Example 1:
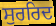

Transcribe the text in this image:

ਸੁਰਰਿਦ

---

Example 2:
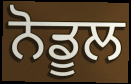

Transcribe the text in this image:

ਨੋਡੂਲ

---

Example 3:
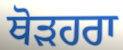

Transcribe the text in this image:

ਥੋੜਹਰਾ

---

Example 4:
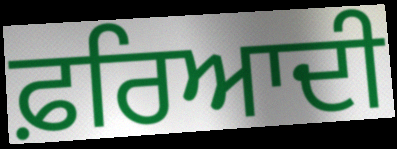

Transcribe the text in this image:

ਫ਼ਰਿਆਦੀ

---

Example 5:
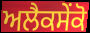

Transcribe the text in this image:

ਅਲੈਕਸੇਂਕੋ